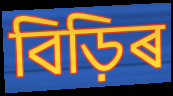
বিড়িৰ